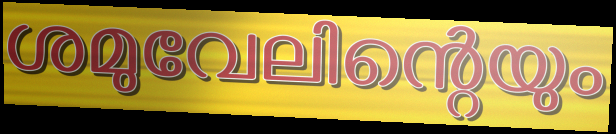
ശമുവേലിന്റെയും